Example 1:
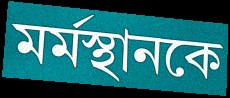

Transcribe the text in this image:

মর্মস্থানকে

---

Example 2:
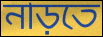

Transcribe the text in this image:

নাড়তে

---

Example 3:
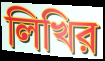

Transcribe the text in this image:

লিখির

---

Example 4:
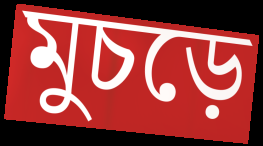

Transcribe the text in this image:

মুচড়ে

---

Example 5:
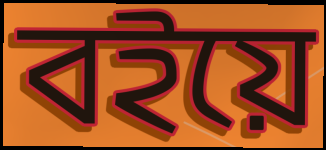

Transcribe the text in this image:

বইয়ে